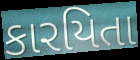
કારયિતા